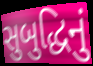
સુબુદ્ધિનું